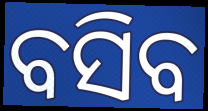
ବସିବ